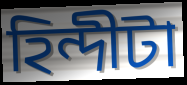
হিন্দীটা